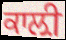
ਕਾਲ਼ੀ